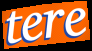
tere